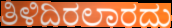
ತಿಳಿದಿರಲಾರದು